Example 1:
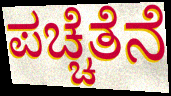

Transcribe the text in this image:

ಪಚ್ಚೆತೆನೆ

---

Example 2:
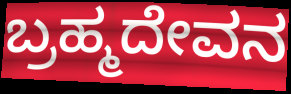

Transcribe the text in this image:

ಬ್ರಹ್ಮದೇವನ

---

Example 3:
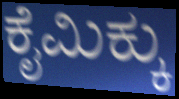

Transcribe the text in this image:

ಕೈಮಿಕ್ಕು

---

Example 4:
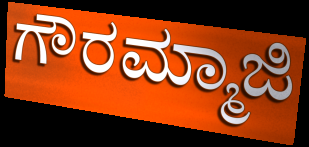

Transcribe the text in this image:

ಗೌರಮ್ಮಾಜಿ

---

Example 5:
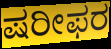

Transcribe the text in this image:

ಷರೀಫರ